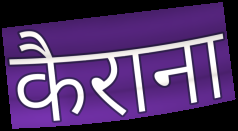
कैराना